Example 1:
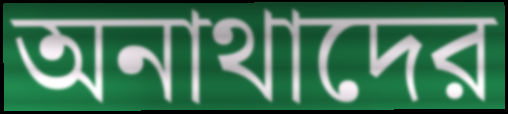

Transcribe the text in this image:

অনাথাদের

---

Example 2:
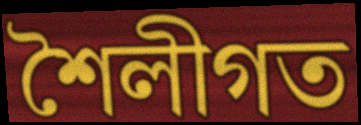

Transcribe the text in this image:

শৈলীগত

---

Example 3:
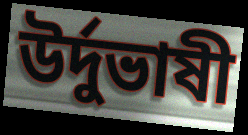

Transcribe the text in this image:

উর্দুভাষী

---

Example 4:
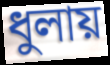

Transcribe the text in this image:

ধুলায়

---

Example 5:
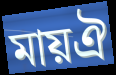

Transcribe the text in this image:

মায়ঐ